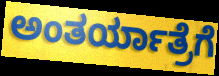
ಅಂತರ್ಯಾತ್ರೆಗೆ